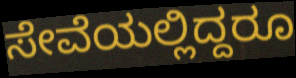
ಸೇವೆಯಲ್ಲಿದ್ದರೂ